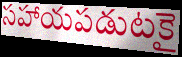
సహాయపడుటకై